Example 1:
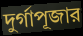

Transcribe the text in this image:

দুর্গাপূজার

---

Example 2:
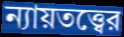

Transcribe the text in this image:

ন্যায়তত্ত্বের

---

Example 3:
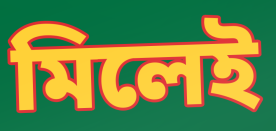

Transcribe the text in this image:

মিলেই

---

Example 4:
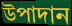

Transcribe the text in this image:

উপাদান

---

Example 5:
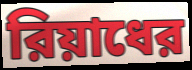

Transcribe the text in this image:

রিয়াধের